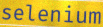
selenium